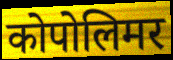
कोपोलिमर